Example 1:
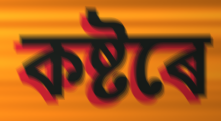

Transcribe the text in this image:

কষ্টৰে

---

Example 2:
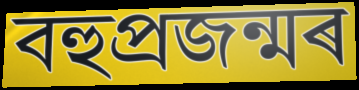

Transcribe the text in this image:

বহুপ্ৰজন্মৰ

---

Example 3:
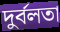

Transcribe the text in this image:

দুৰ্বলতা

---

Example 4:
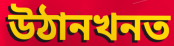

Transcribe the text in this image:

উঠানখনত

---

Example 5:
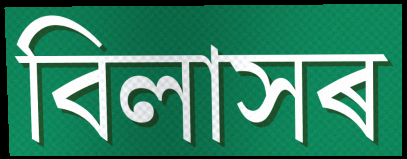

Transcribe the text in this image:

বিলাসৰ